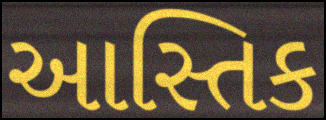
આસ્તિક